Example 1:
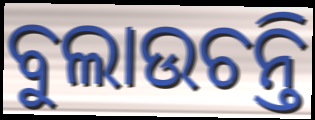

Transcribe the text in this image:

ବୁଲାଉଚନ୍ତି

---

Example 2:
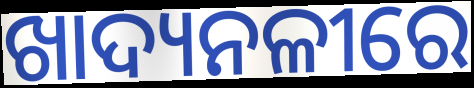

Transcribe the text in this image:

ଖାଦ୍ୟନଳୀରେ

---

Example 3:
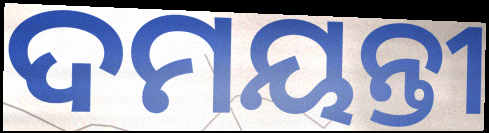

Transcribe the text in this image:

ଦମୟନ୍ତୀ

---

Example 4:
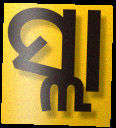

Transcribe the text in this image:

ସ୍ଲା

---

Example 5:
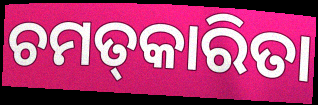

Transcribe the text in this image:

ଚମତ୍‌କାରିତା